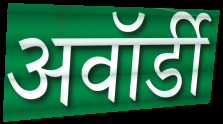
अवॉर्डी